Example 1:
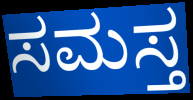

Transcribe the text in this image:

ಸಮಸ್ತ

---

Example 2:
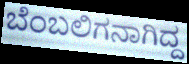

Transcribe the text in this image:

ಬೆಂಬಲಿಗನಾಗಿದ್ದ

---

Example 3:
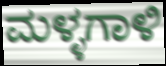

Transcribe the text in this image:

ಮಳ್ಳಗಾಳಿ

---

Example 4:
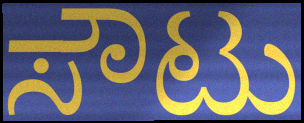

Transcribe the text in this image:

ಸೌಟು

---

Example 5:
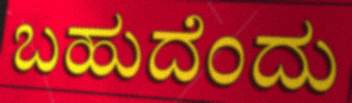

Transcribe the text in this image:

ಬಹುದೆಂದು